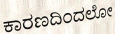
ಕಾರಣದಿಂದಲೋ